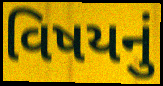
વિષયનું